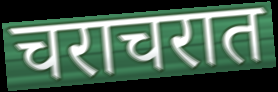
चराचरात